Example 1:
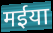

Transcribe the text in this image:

मईया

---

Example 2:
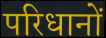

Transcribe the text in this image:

परिधानों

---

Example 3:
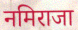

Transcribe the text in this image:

नमिराजा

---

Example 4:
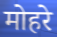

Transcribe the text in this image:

मोहरे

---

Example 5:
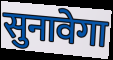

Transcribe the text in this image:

सुनावेगा